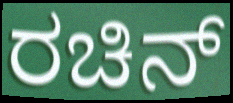
ರಚಿನ್